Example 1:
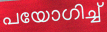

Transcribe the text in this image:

പയോഗിച്ച്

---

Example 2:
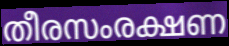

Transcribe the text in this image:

തീരസംരക്ഷണ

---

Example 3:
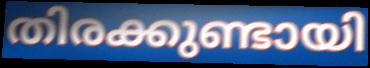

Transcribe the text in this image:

തിരക്കുണ്ടായി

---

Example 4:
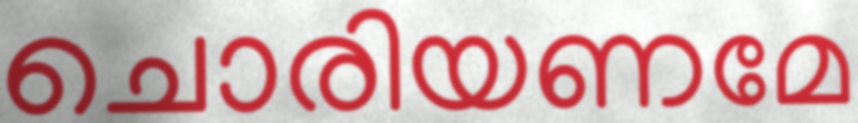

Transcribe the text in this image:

ചൊരിയണമേ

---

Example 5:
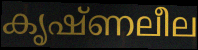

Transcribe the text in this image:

കൃഷ്ണലീല